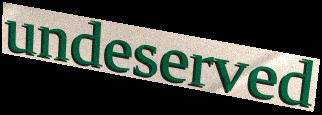
undeserved